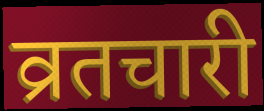
व्रतचारी